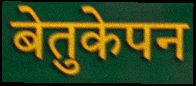
बेतुकेपन